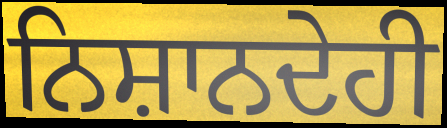
ਨਿਸ਼ਾਨਦੇਹੀ